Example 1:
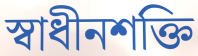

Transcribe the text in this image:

স্বাধীনশক্তি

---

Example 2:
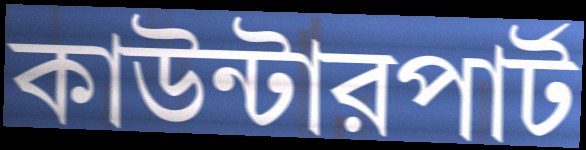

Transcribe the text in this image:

কাউন্টারপার্ট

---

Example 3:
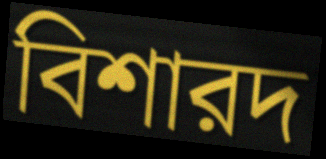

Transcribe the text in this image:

বিশারদ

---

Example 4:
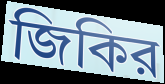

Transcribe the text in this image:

জিকির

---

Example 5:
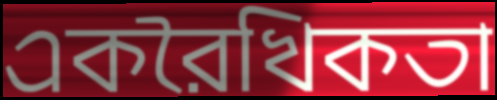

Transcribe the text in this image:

একরৈখিকতা